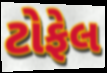
ટોફેલ